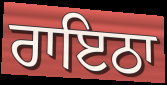
ਰਾਇਠਾ